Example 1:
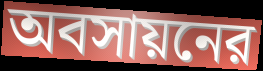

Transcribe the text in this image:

অবসায়নের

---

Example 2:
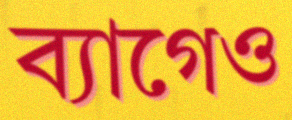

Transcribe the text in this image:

ব্যাগেও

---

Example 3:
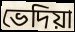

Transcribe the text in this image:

ভেদিয়া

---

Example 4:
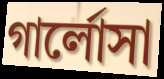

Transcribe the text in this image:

গার্লোসা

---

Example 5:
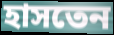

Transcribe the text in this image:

হাসতেন